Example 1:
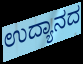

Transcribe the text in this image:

ಉದ್ಯಾನದ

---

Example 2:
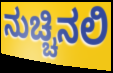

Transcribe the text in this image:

ನುಚ್ಚಿನಲಿ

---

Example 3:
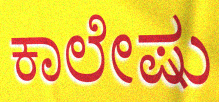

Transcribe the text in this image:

ಕಾಲೇಷು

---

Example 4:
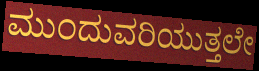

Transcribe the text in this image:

ಮುಂದುವರಿಯುತ್ತಲೇ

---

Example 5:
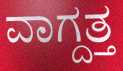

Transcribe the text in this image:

ವಾಗ್ದತ್ತ